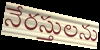
నేరస్తులను